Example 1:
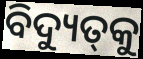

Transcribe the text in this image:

ବିଦ୍ୟୁତ୍‌କୁ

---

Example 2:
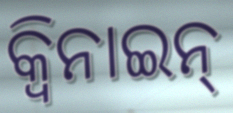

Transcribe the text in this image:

କ୍ୱିନାଇନ୍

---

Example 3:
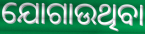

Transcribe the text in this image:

ଯୋଗାଉଥିବା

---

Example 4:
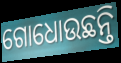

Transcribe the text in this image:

ଗୋଧୋଉଛନ୍ତି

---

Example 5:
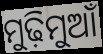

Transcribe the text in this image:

ମୁଢ଼ିମୁଆଁ